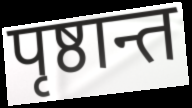
पृष्ठान्त